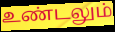
உண்டலும்